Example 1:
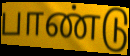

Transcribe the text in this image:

பாண்டு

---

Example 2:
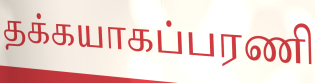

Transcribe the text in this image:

தக்கயாகப்பரணி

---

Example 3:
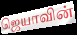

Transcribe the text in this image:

ஜெயாவின்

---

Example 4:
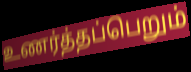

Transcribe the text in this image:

உணர்த்தப்பெறும்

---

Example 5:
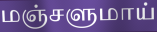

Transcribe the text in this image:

மஞ்சளுமாய்